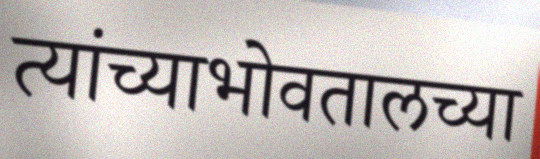
त्यांच्याभोवतालच्या